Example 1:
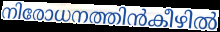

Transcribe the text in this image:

നിരോധനത്തിൻകീഴിൽ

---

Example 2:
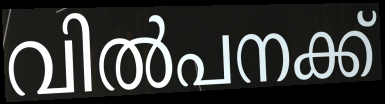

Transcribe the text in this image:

വിൽപനക്ക്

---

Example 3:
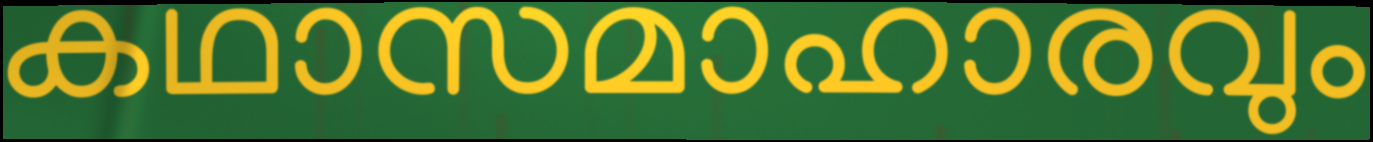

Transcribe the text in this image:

കഥാസമാഹാരവും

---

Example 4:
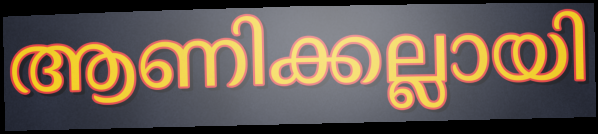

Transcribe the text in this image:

ആണിക്കല്ലായി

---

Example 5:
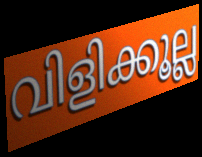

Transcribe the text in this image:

വിളിക്കൂല്ല